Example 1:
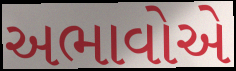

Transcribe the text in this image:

અભાવોએ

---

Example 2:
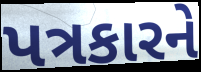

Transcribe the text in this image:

પત્રકારને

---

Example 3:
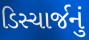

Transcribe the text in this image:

ડિસ્ચાર્જનું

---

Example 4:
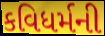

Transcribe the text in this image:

કવિધર્મની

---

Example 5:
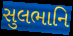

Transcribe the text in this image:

સુલભાનિ